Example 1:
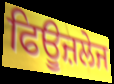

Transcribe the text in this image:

ਫਿਊਜ਼ਲੇਜ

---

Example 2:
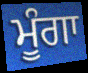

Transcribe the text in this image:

ਮੂੰਗਾ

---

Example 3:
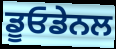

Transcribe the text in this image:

ਡੂਓਡੇਨਲ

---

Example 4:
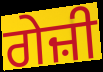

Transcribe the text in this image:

ਗੇਜ਼ੀ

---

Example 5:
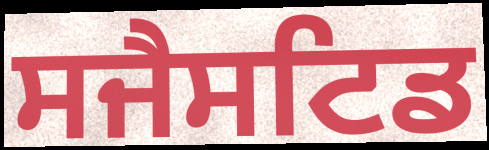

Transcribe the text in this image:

ਸਜੈਸਟਿਡ